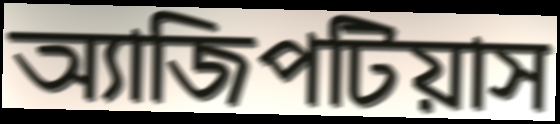
অ্যাজিপটিয়াস